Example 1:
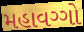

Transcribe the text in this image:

મહાવગ્ગો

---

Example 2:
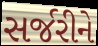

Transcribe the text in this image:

સર્જરીને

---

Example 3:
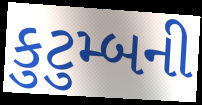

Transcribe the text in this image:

કુટુમ્બની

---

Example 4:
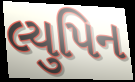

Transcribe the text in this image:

લ્યુપિન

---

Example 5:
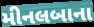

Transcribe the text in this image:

મીનલબાના